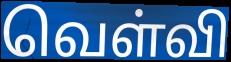
வெள்வி